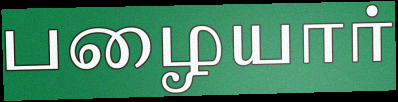
பழையார்